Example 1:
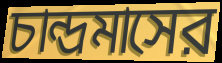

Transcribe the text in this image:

চান্দ্রমাসের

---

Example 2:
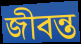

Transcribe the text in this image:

জীবন্ত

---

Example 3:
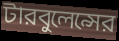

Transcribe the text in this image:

টারবুলেন্সের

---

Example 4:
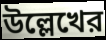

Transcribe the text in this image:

উল্লেখের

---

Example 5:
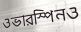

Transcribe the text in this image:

ওভারস্পিনও